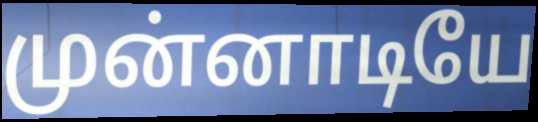
முன்னாடியே